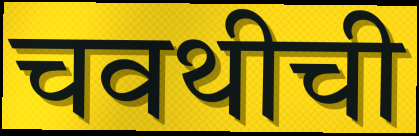
चवथीची